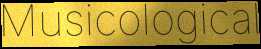
Musicological